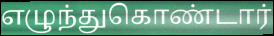
எழுந்துகொண்டார்